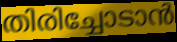
തിരിച്ചോടാൻ